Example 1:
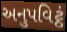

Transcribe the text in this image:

અનુપવિટ્ઠં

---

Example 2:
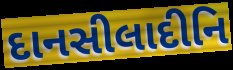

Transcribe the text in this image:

દાનસીલાદીનિ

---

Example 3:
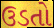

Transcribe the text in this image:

ઉડતો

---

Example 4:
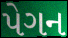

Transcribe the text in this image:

પેગન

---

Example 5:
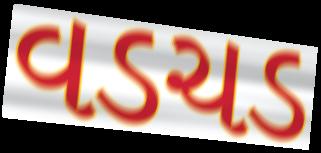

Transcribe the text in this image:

વડચડ